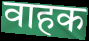
वाहक